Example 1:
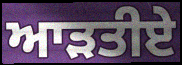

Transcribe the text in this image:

ਆੜਤੀਏ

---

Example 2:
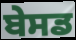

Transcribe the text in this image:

ਬੇਸਡ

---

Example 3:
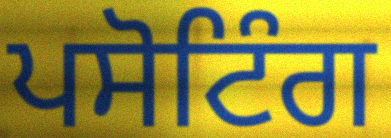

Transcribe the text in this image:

ਪਸੋਟਿੰਗ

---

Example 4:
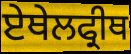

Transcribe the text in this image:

ਏਥੇਲਫ੍ਰੀਥ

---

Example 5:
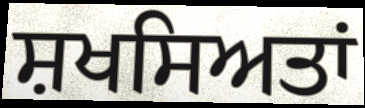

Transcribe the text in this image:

ਸ਼ਖਸਿਅਤਾਂ